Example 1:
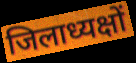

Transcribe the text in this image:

जिलाध्यक्षों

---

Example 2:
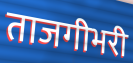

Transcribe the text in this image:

ताजगीभरी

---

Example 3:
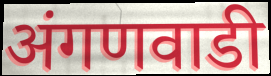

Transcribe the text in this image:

अंगणवाडी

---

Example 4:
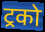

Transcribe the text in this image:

ट्रको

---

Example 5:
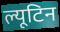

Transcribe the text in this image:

ल्यूटिन